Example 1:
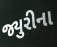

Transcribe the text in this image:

જ્યુરીના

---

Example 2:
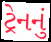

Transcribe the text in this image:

ટ્રેનનું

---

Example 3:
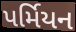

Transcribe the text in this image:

પર્મિયન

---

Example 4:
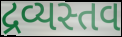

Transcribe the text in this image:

દ્રવ્યસ્તવ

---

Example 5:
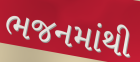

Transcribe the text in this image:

ભજનમાંથી